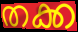
തക്ക